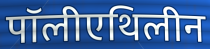
पॉलीएथिलीन